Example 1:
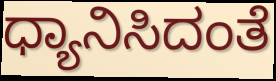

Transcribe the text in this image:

ಧ್ಯಾನಿಸಿದಂತೆ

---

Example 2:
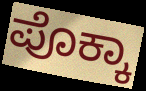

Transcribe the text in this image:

ಪೊಕ್ಕಾ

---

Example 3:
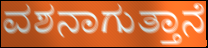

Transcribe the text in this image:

ವಶನಾಗುತ್ತಾನೆ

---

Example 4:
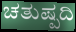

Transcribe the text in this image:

ಚತುಷ್ಪದಿ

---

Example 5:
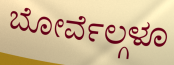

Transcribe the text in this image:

ಬೋರ್ವೆಲ್ಗಳೂ